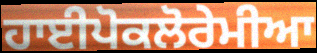
ਹਾਈਪੋਕਲੋਰੇਮੀਆ